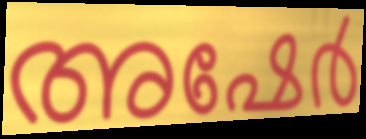
അഷേർ